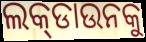
ଲକ୍‌ଡାଉନକୁ